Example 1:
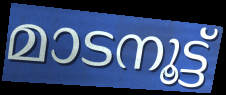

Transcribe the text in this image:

മാടനൂട്ട്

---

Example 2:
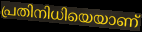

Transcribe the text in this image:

പ്രതിനിധിയെയാണ്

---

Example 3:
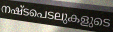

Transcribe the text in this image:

നഷ്ടപെടലുകളുടെ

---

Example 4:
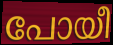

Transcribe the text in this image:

പോയീ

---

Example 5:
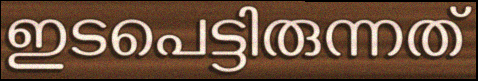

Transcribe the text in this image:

ഇടപെട്ടിരുന്നത്